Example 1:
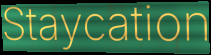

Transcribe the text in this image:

Staycation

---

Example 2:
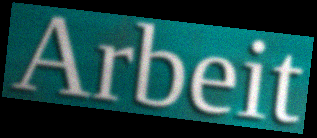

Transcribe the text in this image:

Arbeit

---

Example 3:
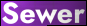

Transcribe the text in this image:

Sewer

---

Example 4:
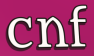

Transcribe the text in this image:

cnf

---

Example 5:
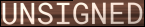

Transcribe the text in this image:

UNSIGNED